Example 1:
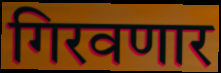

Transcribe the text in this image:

गिरवणार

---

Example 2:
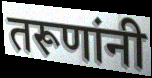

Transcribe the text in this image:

तरूणांनी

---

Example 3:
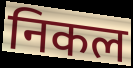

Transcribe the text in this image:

निकल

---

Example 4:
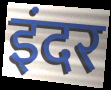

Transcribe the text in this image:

इंदर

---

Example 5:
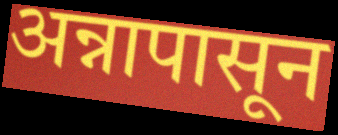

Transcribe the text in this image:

अन्नापासून